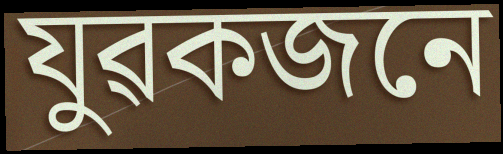
যুৱকজনে